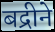
बद्रीने